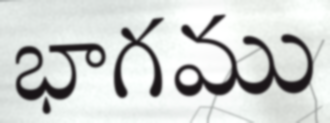
భాగము